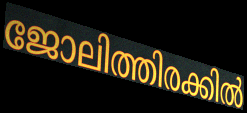
ജോലിത്തിരക്കിൽ